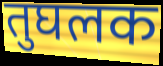
तुघलक